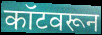
कॉटवरून